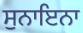
ਸੁਨਾਇਨਾ